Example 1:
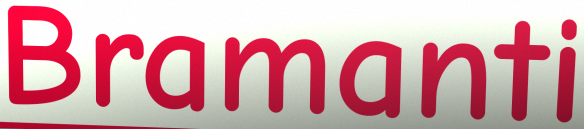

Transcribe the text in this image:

Bramanti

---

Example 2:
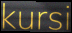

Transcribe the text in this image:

kursi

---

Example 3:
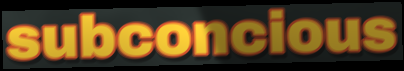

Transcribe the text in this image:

subconcious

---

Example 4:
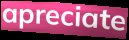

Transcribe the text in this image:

apreciate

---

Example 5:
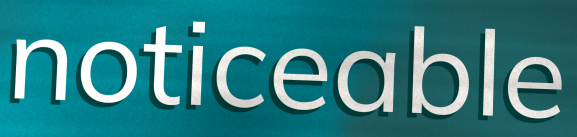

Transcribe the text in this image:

noticeable